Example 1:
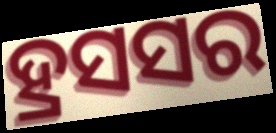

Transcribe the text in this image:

ହ୍ରସସର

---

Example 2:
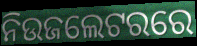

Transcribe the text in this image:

ନିଉଜଲେଟରରେ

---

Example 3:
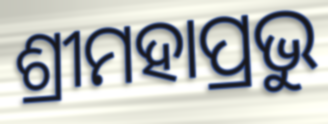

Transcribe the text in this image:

ଶ୍ରୀମହାପ୍ରଭୁ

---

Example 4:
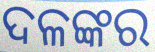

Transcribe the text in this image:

ଦଳଙ୍କର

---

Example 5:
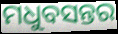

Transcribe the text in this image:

ମଧୁବସନ୍ତର